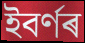
ইবৰ্ণৰ